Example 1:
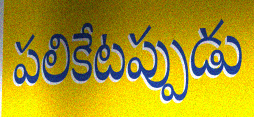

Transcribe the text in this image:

పలికేటప్పుడు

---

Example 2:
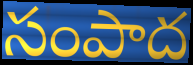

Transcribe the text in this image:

సంపాద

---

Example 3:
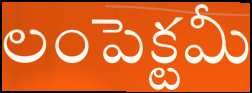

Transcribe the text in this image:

లంపెక్టమీ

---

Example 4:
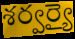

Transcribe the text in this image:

శర్వర్యై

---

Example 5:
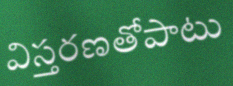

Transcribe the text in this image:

విస్తరణతోపాటు